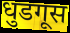
धुडगूस